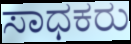
ಸಾಧಕರು